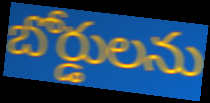
బోర్డులను